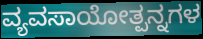
ವ್ಯವಸಾಯೋತ್ಪನ್ನಗಳ